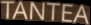
TANTEA